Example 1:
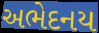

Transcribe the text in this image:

અભેદનય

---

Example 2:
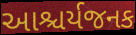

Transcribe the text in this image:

આશ્ચર્યજનક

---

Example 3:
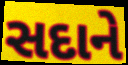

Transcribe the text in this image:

સદાને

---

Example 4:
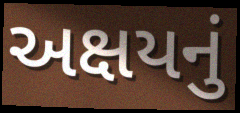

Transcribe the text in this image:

અક્ષયનું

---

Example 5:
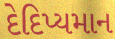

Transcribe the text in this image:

દેદિપ્યમાન